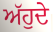
ਅੱਹੁਦੇ